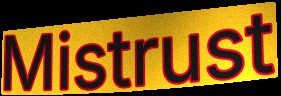
Mistrust